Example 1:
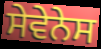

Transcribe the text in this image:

ਸੇਵੇਨੇਸ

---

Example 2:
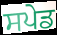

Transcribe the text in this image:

ਸਪੇਡ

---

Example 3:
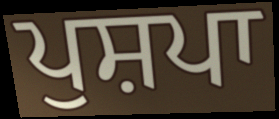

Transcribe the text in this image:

ਪੁਸ਼ਪਾ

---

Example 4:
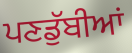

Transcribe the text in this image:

ਪਣਡੁੱਬੀਆਂ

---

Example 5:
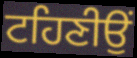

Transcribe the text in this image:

ਟਹਿਣੀਉਂ